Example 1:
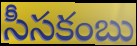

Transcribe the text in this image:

సీసకంబు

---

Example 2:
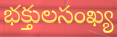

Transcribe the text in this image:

భక్తులసంఖ్య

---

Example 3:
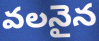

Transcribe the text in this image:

వలనైన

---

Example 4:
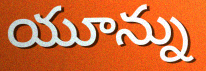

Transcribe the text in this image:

యూన్ను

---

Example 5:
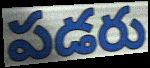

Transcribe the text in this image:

పడరు